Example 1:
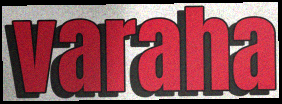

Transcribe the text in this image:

varaha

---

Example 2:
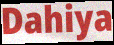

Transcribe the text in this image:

Dahiya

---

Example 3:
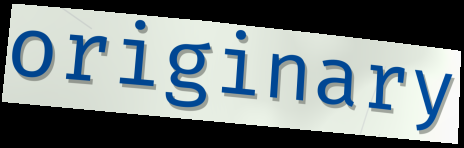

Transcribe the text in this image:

originary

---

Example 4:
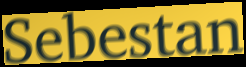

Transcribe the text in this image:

Sebestan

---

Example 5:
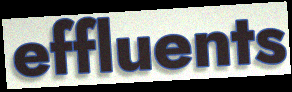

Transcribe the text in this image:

effluents